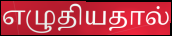
எழுதியதால்